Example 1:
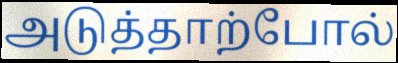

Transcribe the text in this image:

அடுத்தாற்போல்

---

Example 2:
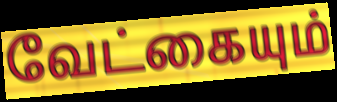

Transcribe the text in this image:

வேட்கையும்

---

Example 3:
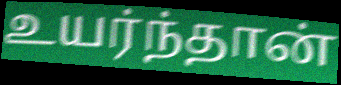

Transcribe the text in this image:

உயர்ந்தான்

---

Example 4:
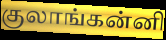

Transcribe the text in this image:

குலாங்கன்னி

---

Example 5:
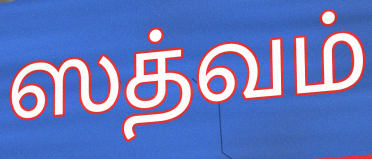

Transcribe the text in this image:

ஸத்வம்